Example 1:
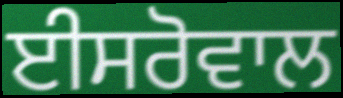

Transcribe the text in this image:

ਈਸਰੋਵਾਲ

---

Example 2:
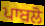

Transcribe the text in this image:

ਪਾਬਲੋ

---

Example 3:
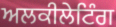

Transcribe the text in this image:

ਅਲਕੀਲੇਟਿੰਗ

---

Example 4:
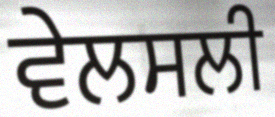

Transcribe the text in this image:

ਵੇਲਸਲੀ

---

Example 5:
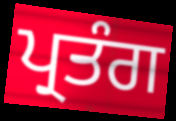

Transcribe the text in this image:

ਪ੍ਰਤੰਗ